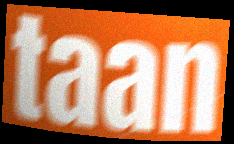
taan